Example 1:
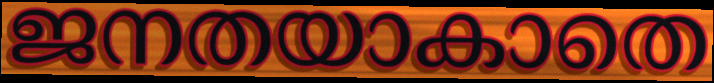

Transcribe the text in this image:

ജനതയാകാതെ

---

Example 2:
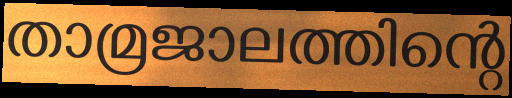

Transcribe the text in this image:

താമ്രജാലത്തിന്റെ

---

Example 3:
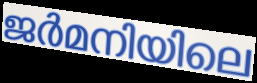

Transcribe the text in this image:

ജർമനിയിലെ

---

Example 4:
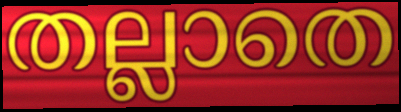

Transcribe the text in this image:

തല്ലാതെ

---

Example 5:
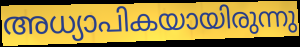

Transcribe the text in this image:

അധ്യാപികയായിരുന്നു